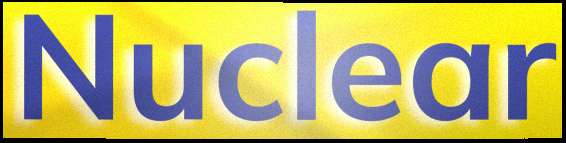
Nuclear